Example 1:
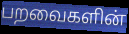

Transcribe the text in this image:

பறவைகளின்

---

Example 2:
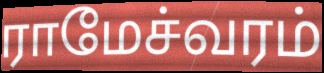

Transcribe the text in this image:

ராமேச்வரம்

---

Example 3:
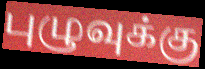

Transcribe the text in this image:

புழுவுக்கு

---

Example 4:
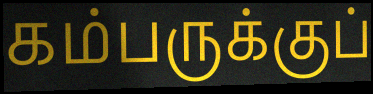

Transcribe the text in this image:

கம்பருக்குப்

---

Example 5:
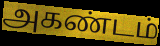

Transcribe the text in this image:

அகண்டம்